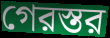
গেরস্তর